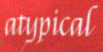
atypical